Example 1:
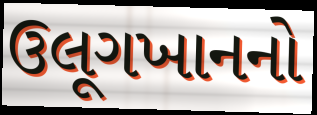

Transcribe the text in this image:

ઉલૂગખાનનો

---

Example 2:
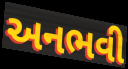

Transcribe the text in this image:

અનભવી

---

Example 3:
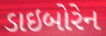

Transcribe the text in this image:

ડાઇબોરેન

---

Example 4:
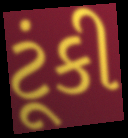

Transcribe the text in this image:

ટૂંકી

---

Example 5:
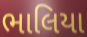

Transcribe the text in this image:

ભાલિયા